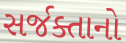
સર્જક્તાનો